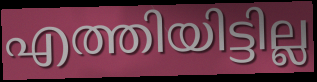
എത്തിയിട്ടില്ല